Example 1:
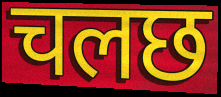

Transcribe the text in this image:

चलछ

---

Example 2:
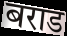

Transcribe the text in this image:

बराड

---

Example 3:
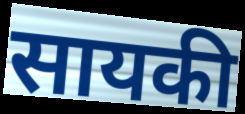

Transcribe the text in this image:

सायकी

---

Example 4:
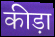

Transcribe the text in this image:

कीड़ा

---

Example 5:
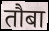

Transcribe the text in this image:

तौबा